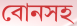
বোনসহ